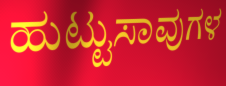
ಹುಟ್ಟುಸಾವುಗಳ